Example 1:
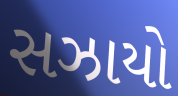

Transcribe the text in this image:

સઝાયો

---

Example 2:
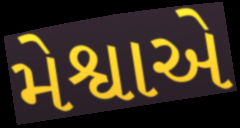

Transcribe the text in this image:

મેશ્વાએ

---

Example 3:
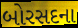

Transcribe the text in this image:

બોરસદના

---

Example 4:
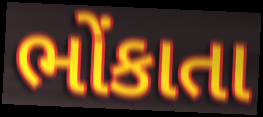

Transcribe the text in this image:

ભોંકાતા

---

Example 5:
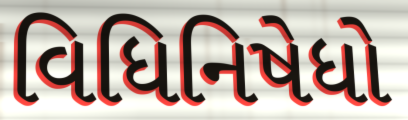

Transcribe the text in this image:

વિધિનિષેધો